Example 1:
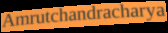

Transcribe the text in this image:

Amrutchandracharya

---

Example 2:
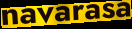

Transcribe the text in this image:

navarasa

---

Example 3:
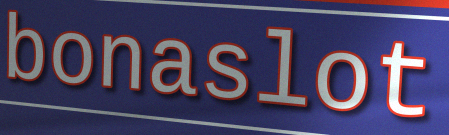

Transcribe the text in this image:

bonaslot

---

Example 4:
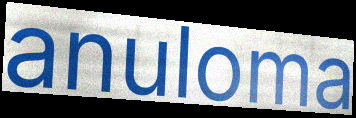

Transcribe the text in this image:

anuloma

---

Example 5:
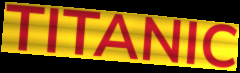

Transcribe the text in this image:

TITANIC